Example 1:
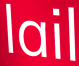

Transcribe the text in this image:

lail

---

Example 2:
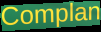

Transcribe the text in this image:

Complan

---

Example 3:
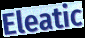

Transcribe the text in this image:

Eleatic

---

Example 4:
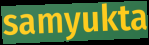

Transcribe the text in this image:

samyukta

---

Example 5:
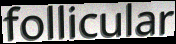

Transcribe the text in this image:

follicular